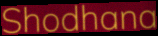
Shodhana